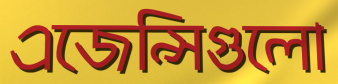
এজেন্সিগুলো